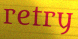
retry